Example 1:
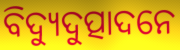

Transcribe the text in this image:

ବିଦ୍ଯୁଦୁତ୍ପାଦନେ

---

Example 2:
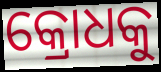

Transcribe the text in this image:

କ୍ରୋଧକୁ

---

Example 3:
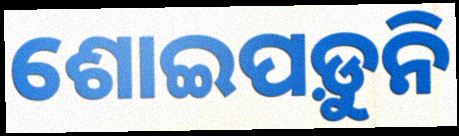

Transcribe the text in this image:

ଶୋଇପଡ଼ୁନି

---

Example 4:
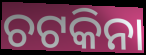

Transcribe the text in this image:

ଚଟକିନା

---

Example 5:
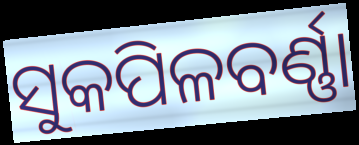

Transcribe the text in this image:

ସୁକପିଳବର୍ଣ୍ଣା